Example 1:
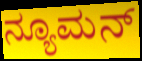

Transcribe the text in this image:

ನ್ಯೂಮನ್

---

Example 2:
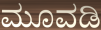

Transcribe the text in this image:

ಮೂವಡಿ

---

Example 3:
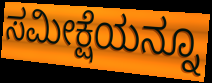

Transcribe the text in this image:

ಸಮೀಕ್ಷೆಯನ್ನೂ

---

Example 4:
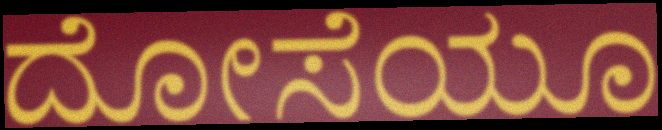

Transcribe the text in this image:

ದೋಸೆಯೂ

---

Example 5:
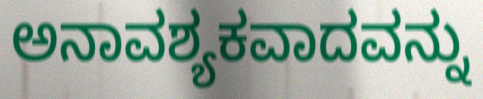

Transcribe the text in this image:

ಅನಾವಶ್ಯಕವಾದವನ್ನು